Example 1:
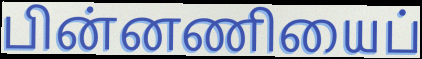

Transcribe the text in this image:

பின்னணியைப்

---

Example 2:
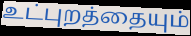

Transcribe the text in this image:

உட்புறத்தையும்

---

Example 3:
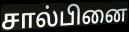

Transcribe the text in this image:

சால்பினை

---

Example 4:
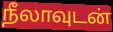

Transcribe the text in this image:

நீலாவுடன்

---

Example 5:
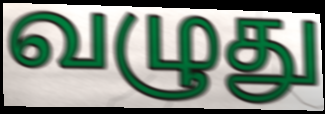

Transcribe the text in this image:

வழுது